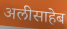
अलीसाहेब